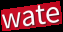
wate